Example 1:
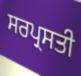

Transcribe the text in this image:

ਸਰਪ੍ਰਸਤੀ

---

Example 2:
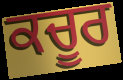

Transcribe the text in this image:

ਕਚੂਰ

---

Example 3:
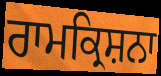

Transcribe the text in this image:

ਰਾਮਕ੍ਰਿਸ਼ਨਾ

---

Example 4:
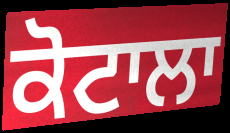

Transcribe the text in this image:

ਕੋਟਾਲਾ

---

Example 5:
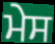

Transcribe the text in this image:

ਮੇਸ